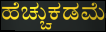
ಹೆಚ್ಚುಕಡಮೆ